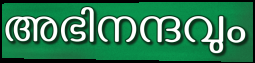
അഭിനന്ദവും